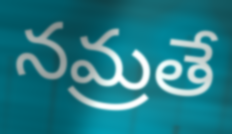
నమ్రతే